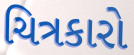
ચિત્રકારો